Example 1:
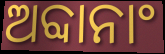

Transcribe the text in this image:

ଅବ୍ଦାନାଂ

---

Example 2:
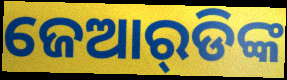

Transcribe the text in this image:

ଜେଆର୍‌ଡିଙ୍କ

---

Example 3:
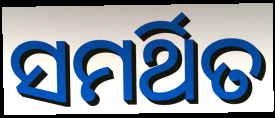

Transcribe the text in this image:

ସମର୍ଥିତ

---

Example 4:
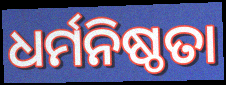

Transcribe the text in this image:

ଧର୍ମନିଷ୍ଠତା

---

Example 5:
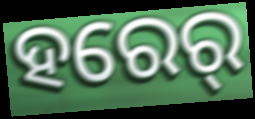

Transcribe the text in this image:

ହରେର୍